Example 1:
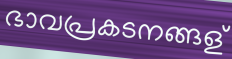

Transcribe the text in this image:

ഭാവപ്രകടനങ്ങള്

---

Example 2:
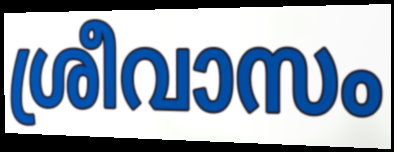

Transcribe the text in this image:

ശ്രീവാസം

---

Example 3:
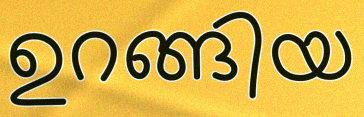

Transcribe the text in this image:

ഉറങ്ങിയ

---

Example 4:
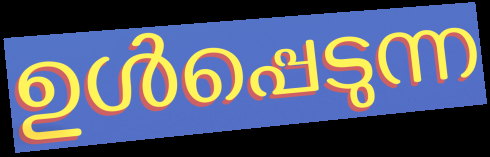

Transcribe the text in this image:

ഉൾപ്പെടുന്ന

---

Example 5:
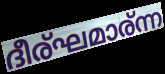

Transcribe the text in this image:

ദീര്ഘമാര്ന്ന